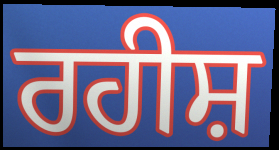
ਰਹੀਸ਼